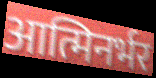
आत्मिनर्भर